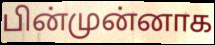
பின்முன்னாக